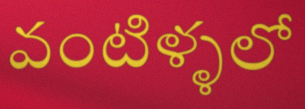
వంటిళ్ళలో